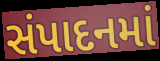
સંપાદનમાં